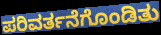
ಪರಿವರ್ತನೆಗೊಂಡಿತು